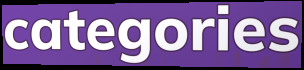
categories